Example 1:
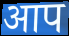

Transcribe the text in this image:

आप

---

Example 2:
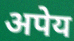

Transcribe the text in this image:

अपेय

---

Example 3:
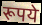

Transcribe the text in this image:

रूपये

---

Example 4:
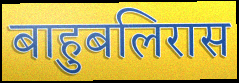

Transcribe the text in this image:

बाहुबलिरास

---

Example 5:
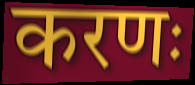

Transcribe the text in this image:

करणः